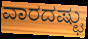
ವಾರದಷ್ಟು